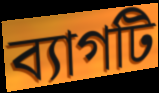
ব্যাগটি